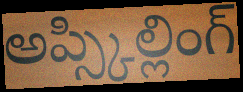
అప్స్కిల్లింగ్